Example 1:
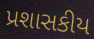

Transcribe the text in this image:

પ્રશાસકીય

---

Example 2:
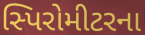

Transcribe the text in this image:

સ્પિરોમીટરના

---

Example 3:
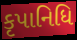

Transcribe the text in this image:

કૃપાનિધિ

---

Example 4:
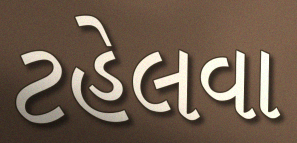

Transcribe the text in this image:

ટહેલવા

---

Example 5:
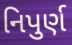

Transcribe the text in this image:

નિપુર્ણ